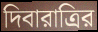
দিবারাত্রির